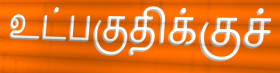
உட்பகுதிக்குச்